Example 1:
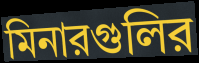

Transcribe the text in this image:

মিনারগুলির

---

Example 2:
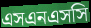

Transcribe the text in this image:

এসএনএসসি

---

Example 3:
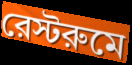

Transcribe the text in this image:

রেস্টরুমে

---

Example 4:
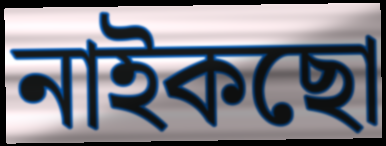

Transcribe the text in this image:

নাইকছো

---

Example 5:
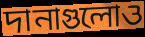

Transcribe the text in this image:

দানাগুলোও